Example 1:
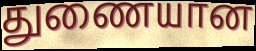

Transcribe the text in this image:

துணையான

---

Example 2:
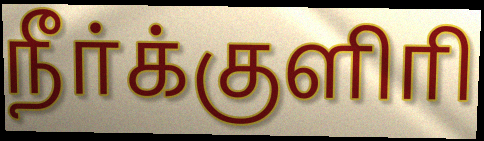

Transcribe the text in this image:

நீர்க்குளிரி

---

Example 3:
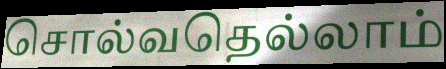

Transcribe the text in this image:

சொல்வதெல்லாம்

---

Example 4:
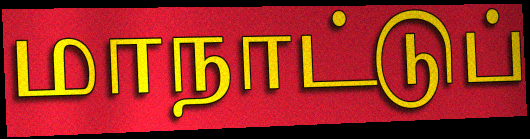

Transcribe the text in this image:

மாநாட்டுப்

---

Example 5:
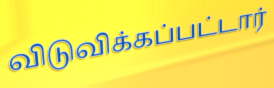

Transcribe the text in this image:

விடுவிக்கப்பட்டார்